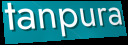
tanpura